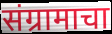
संग्रामाचा